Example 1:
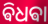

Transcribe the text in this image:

ଵିଧଵା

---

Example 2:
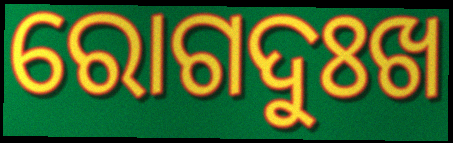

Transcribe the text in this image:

ରୋଗଦୁଃଖ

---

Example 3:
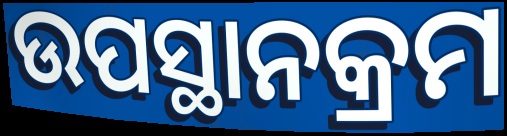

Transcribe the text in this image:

ଉପସ୍ଥାନକ୍ରମ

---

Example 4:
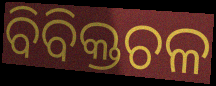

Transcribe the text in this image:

ବିବିକ୍ତଚଳ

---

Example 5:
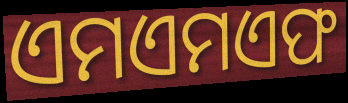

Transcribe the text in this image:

ଏମଏମଏଫ